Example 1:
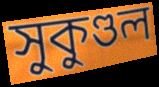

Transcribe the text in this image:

সুকুণ্ডল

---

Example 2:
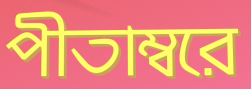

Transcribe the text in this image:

পীতাম্বরে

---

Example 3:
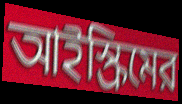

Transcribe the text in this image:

আইস্ক্রিমের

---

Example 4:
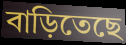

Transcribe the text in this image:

বাড়িতেছে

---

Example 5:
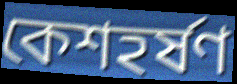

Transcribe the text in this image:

কেশহর্ষণ